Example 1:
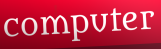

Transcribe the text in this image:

computer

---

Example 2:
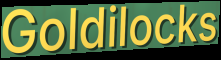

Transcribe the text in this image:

Goldilocks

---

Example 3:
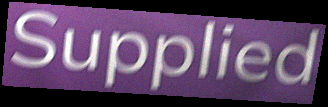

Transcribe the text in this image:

Supplied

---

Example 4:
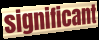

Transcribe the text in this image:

significant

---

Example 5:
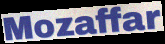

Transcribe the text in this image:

Mozaffar